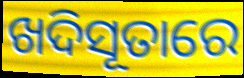
ଖଦିସୂତାରେ